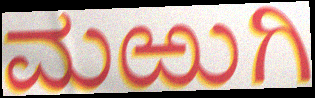
ಮಱುಗಿ